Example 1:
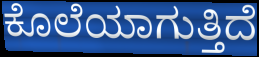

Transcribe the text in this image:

ಕೊಲೆಯಾಗುತ್ತಿದೆ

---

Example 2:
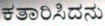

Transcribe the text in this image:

ಕತಾರಿಸಿದನು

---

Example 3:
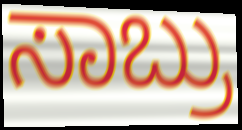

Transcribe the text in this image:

ಸಾಬ್ರು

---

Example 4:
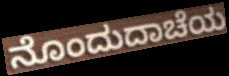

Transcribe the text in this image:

ನೊಂದುದಾಚೆಯ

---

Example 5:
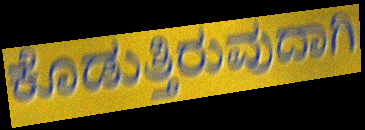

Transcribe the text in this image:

ಕೊಡುತ್ತಿರುವುದಾಗಿ